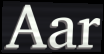
Aar